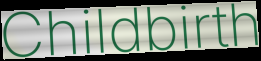
Childbirth